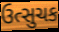
ઉત્સુચક